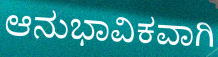
ಆನುಭಾವಿಕವಾಗಿ